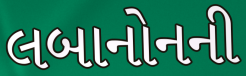
લબાનોનની